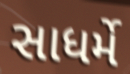
સાધર્મે